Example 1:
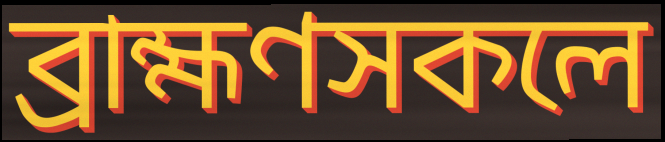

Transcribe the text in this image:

ব্ৰাহ্মণসকলে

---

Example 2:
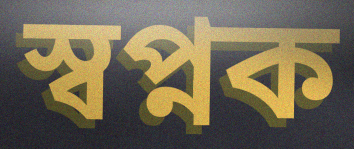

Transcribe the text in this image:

স্বপ্নক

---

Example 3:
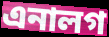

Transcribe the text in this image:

এনালগ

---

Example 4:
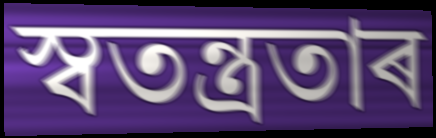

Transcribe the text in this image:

স্বতন্ত্ৰতাৰ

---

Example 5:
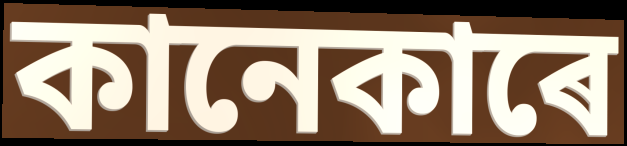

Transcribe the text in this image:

কানেকাৰে